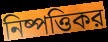
নিষ্পত্তিকর